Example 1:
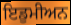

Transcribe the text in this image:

ਇਡੁਮੀਅਨ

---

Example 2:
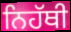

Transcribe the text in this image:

ਨਿਹੱਥੀ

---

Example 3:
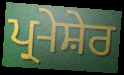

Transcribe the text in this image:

ਪ੍ਰ੍ਮੇਸ਼ੇਰ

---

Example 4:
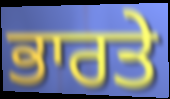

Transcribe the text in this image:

ਭਾਰਤੇ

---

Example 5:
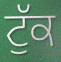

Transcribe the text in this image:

ਟੁੱਕ